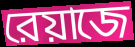
রেয়াজে